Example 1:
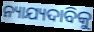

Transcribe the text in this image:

ନ୍ୟାଯ୍ୟଦାବିକୁ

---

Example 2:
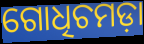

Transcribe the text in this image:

ଗୋଧିଚମଡ଼ା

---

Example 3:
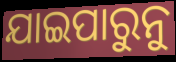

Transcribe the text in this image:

ଯାଇପାରୁନୁ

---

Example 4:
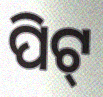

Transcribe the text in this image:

ପିଟ୍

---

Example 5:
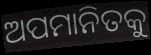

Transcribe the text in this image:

ଅପମାନିତକୁ